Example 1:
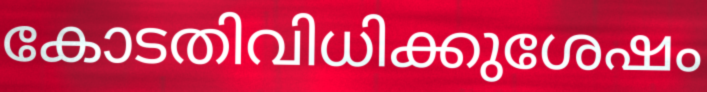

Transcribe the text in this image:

കോടതിവിധിക്കുശേഷം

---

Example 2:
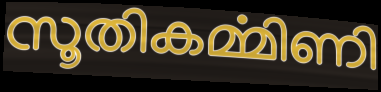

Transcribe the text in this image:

സൂതികൎമ്മിണി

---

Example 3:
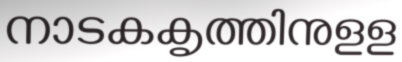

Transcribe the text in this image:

നാടകകൃത്തിനുളള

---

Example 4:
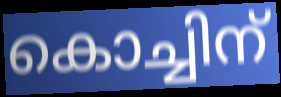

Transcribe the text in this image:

കൊച്ചിന്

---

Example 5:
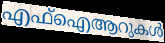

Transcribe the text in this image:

എഫ്ഐആറുകൾ